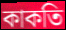
কাকতি